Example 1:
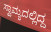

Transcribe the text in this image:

ಸ್ವಾಮ್ಯದಲ್ಲಿದ್ದ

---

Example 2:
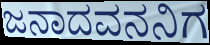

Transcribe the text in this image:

ಜನಾದವನನಿಗ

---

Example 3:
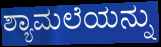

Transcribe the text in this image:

ಶ್ಯಾಮಲೆಯನ್ನು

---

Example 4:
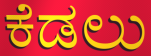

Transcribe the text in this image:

ಕೆಡಲು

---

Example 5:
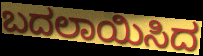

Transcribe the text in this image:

ಬದಲಾಯಿಸಿದ